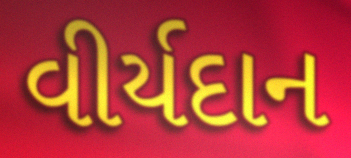
વીર્યદાન